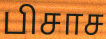
பிசாச